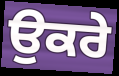
ਉਕਰੇ